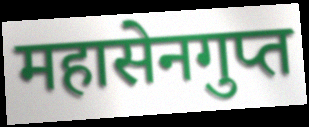
महासेनगुप्त